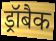
ड्रॉबैक